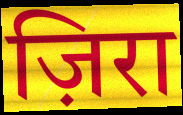
ज़िरा